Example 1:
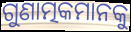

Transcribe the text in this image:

ଗୁଣାତ୍ମକମାନକୁ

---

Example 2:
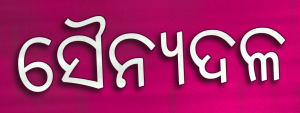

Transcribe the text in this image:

ସୈନ୍ୟଦଳ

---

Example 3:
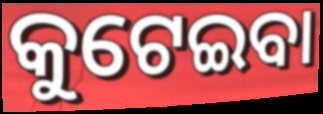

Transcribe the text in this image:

କୁଟେଇବା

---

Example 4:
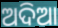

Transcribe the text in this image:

ଅଦିଆ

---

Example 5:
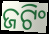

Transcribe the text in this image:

ଜଟିଂ